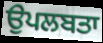
ਉਪਲਬਤਾ